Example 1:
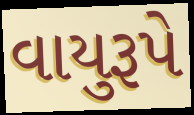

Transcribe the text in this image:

વાયુરૂપે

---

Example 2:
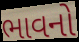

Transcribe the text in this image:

ભાવનો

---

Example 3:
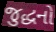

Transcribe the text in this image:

જુદ્ધનો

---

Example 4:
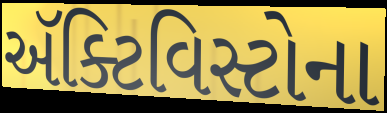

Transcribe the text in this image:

ઍક્ટિવિસ્ટોના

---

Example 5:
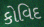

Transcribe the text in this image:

કોવિદ